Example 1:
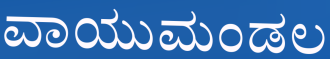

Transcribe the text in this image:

ವಾಯುಮಂಡಲ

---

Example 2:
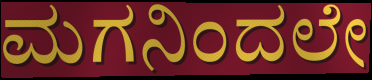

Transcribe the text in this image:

ಮಗನಿಂದಲೇ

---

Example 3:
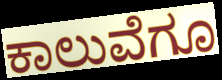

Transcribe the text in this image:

ಕಾಲುವೆಗೂ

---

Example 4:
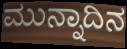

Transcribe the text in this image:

ಮುನ್ನಾದಿನ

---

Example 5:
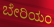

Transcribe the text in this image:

ಬೇರಿಯಂ